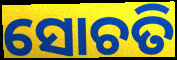
ସୋଚତି